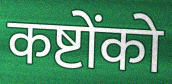
कष्टोंको